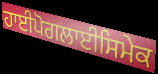
ਹਾਈਪੋਗਲਾਈਸਿਮੇਕ